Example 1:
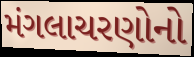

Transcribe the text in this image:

મંગલાચરણોનો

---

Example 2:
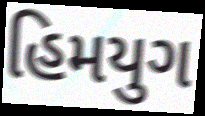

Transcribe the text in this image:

હિમયુગ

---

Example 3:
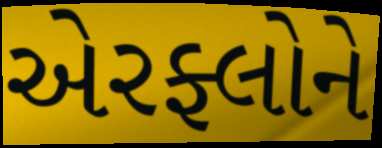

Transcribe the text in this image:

એરફ્લોને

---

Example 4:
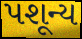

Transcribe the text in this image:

પશૂન્ય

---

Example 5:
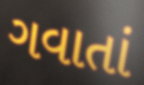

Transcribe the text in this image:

ગવાતાં